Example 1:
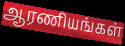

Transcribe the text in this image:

ஆரணியங்கள்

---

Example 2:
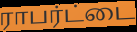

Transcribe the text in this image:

ராபர்ட்டை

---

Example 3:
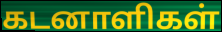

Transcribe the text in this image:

கடனாளிகள்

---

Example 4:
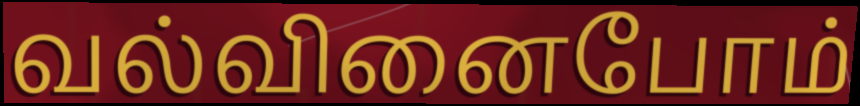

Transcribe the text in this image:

வல்வினைபோம்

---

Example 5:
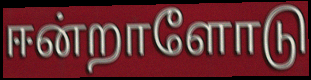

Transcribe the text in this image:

ஈன்றாளோடு